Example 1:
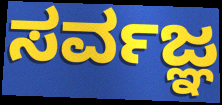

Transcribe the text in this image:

ಸರ್ವಜ್ಞ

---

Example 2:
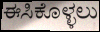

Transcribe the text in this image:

ಈಸಿಕೊಳ್ಳಲು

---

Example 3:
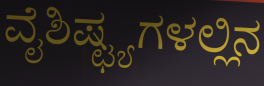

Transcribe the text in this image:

ವೈಶಿಷ್ಟ್ಯಗಳಲ್ಲಿನ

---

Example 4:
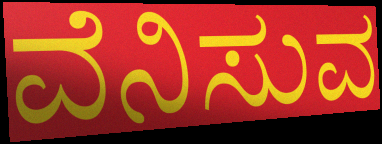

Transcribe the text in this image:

ವೆನಿಸುವ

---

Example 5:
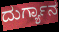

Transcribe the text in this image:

ದುರ್ಗ್ಯಾನ